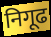
निगूढ